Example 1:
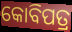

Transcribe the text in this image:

କୋବିପତ୍ର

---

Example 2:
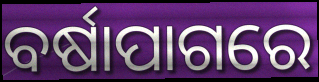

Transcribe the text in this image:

ବର୍ଷାପାଗରେ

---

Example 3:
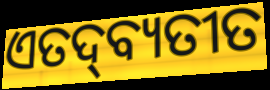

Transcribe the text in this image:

ଏତଦ୍‌ବ୍ୟତୀତ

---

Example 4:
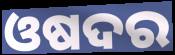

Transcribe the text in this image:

ଓଷଦର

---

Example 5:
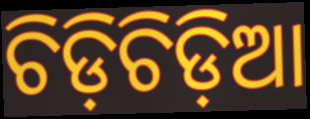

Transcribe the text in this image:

ଚିଡ଼ିଚିଡ଼ିଆ